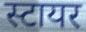
स्टायर